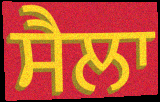
ਸੈਲਾ